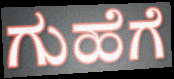
ಗುಹೆಗೆ